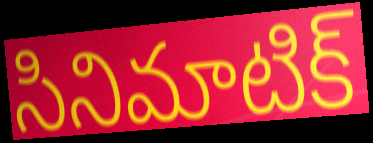
సినిమాటిక్